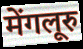
मेंगलूरु